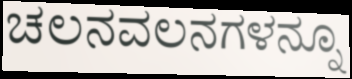
ಚಲನವಲನಗಳನ್ನೂ